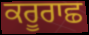
ਕਰੂਰਾਛ